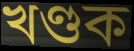
খণ্ডক